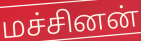
மச்சினன்